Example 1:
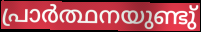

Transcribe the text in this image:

പ്രാർത്ഥനയുണ്ടു്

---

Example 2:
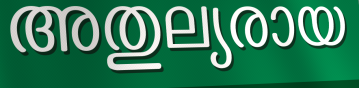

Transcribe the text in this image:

അതുല്യരായ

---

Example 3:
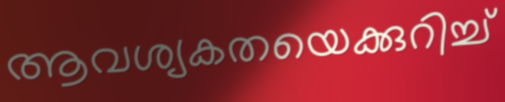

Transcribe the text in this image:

ആവശ്യകതയെക്കുറിച്ച്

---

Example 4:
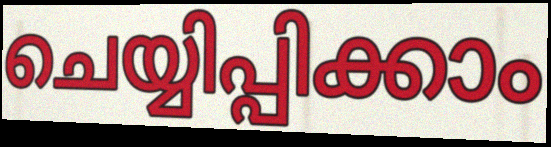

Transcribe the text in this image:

ചെയ്യിപ്പിക്കാം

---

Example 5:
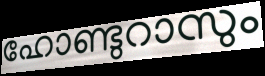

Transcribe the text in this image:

ഹോണ്ടുറാസും